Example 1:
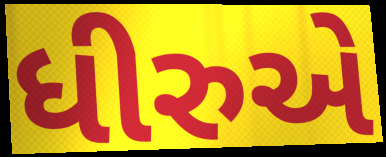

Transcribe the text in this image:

ધીરુએ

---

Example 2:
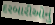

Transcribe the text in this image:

દરબારીઓનું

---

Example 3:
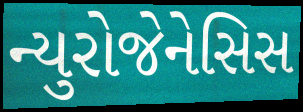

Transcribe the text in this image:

ન્યુરોજેનેસિસ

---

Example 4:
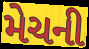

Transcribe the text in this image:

મેચની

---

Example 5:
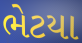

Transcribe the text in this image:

ભેટયા